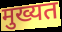
मुख्यत